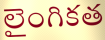
లైంగికత